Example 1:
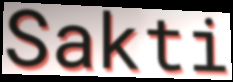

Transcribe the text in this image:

Sakti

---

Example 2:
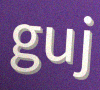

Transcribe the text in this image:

guj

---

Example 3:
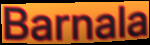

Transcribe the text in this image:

Barnala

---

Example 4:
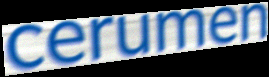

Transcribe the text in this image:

cerumen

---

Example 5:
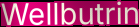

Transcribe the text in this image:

Wellbutrin